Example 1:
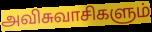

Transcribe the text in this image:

அவிசுவாசிகளும்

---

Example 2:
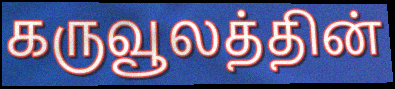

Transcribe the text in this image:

கருவூலத்தின்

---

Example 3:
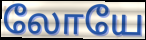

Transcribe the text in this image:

லோயே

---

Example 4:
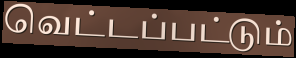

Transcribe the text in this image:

வெட்டப்பட்டும்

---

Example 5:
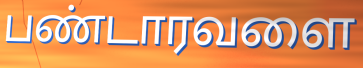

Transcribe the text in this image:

பண்டாரவளை